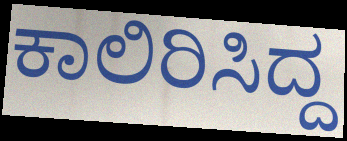
ಕಾಲಿರಿಸಿದ್ದ